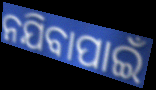
ନଯିବାପାଇଁ